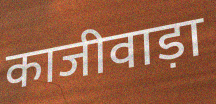
काजीवाड़ा